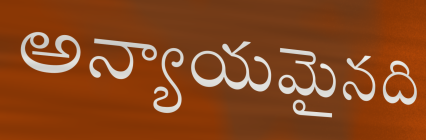
అన్యాయమైనది